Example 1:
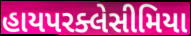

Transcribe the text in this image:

હાયપરક્લેસીમિયા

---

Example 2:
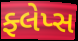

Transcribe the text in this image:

ફ્લેપ્સ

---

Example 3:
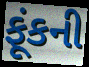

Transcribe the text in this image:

ફૂંકની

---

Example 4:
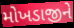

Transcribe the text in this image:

મોખડાજીને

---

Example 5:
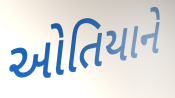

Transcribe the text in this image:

ઓતિયાને